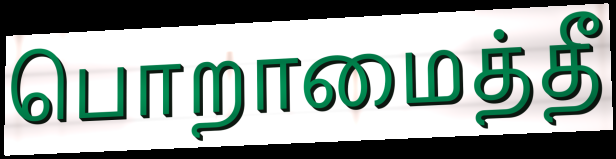
பொறாமைத்தீ